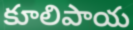
కూలిపాయ